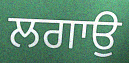
ਲਗਾਉੁ